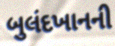
બુલંદખાનની